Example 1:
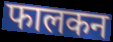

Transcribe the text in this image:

फालकन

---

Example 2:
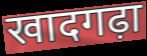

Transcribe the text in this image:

खादगढ़ा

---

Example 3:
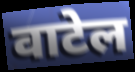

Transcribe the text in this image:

वाटेल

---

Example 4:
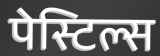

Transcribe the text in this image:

पेस्टिल्स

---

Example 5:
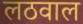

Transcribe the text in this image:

लठवाल